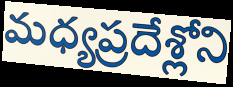
మధ్యప్రదేశ్లోని